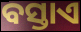
ବସ୍ତାଏ